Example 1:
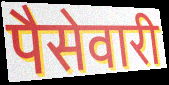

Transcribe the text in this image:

पैसेवारी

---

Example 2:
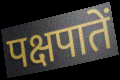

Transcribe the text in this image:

पक्षपातें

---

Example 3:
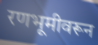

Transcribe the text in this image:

रणभूमीवरून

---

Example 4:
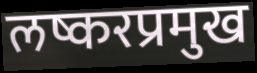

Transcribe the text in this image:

लष्करप्रमुख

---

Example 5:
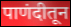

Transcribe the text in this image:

पाणंदीतून